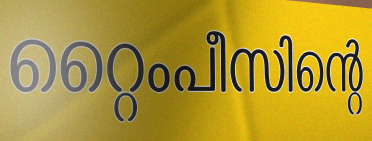
റ്റൈംപീസിന്റെ